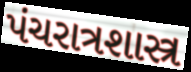
પંચરાત્રશાસ્ત્ર